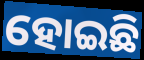
ହୋଇଛି